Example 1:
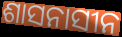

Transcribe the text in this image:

ଶାସନାସୀନ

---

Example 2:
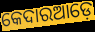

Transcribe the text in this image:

କେଦାରଆଡ଼େ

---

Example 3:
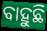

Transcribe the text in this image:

ବାହୁଛି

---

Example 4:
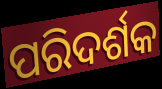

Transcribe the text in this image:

ପରିଦର୍ଶକ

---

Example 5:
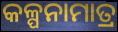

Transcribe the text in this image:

କଳ୍ପନାମାତ୍ର